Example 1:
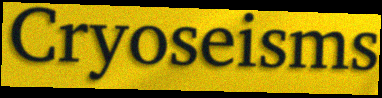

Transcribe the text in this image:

Cryoseisms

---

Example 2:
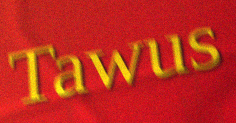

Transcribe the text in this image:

Tawus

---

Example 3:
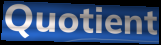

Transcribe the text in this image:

Quotient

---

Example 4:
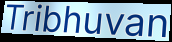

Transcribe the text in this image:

Tribhuvan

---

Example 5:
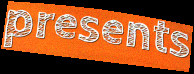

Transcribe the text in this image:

presents